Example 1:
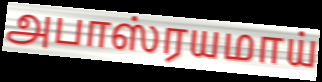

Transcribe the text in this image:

அபாஸ்ரயமாய்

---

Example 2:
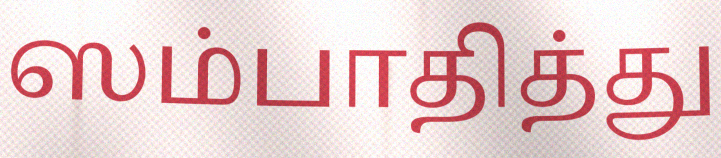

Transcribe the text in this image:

ஸம்பாதித்து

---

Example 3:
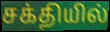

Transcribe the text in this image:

சக்தியில்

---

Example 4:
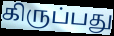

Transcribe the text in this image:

கிருப்பது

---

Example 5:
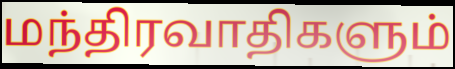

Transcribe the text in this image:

மந்திரவாதிகளும்